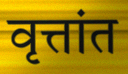
वृत्तांत